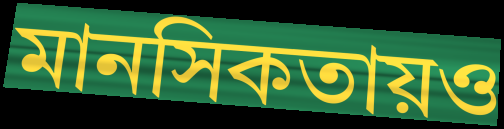
মানসিকতায়ও